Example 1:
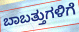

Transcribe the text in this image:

ಬಾಬತ್ತುಗಳಿಗೆ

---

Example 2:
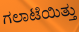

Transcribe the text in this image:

ಗಲಾಟೆಯಿತ್ತು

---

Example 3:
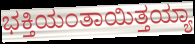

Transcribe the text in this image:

ಭಕ್ತಿಯಂತಾಯಿತ್ತಯ್ಯಾ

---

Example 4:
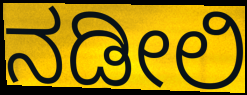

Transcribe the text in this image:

ನಡೀಲಿ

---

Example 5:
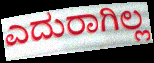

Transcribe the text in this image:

ಎದುರಾಗಿಲ್ಲ